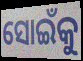
ସୋଇଁକୁ